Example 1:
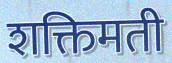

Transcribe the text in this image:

शक्तिमती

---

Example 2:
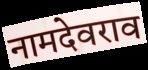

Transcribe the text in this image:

नामदेवराव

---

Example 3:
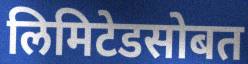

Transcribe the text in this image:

लिमिटेडसोबत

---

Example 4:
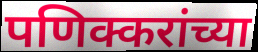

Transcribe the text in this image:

पणिक्करांच्या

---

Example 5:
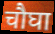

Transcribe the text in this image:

चौघा